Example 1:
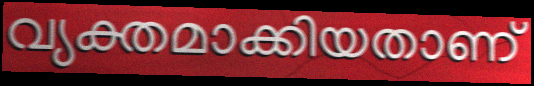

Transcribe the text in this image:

വ്യക്തമാക്കിയതാണ്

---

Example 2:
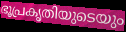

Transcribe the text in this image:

ഭൂപ്രകൃതിയുടെയും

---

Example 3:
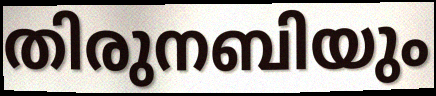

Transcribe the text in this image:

തിരുനബിയും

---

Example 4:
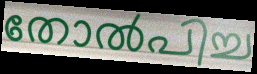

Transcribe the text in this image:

തോൽപിച്ച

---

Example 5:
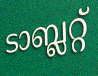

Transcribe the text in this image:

ടാബ്ലറ്റ്